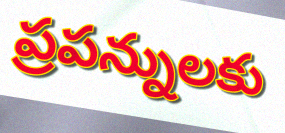
ప్రపన్నులకు